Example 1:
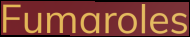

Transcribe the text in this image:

Fumaroles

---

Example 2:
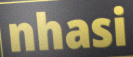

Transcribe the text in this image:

nhasi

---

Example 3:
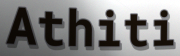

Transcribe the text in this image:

Athiti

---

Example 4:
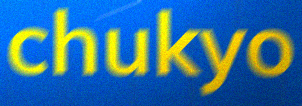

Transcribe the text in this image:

chukyo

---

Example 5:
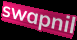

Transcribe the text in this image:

swapnil